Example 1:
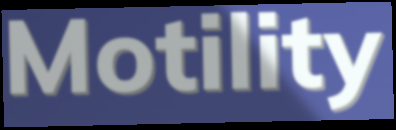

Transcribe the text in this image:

Motility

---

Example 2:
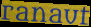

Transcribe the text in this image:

ranaut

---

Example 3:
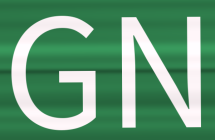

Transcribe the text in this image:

GN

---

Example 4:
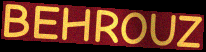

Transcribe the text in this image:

BEHROUZ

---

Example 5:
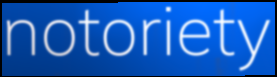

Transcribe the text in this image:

notoriety